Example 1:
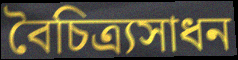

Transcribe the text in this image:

বৈচিত্র্যসাধন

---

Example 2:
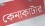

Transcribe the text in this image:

কেনাকাটার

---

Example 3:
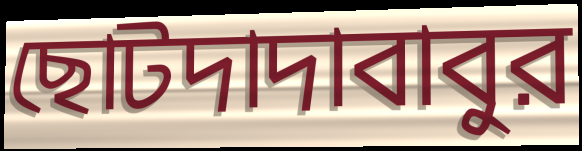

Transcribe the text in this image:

ছোটদাদাবাবুর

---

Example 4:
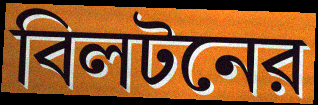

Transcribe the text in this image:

বিলটনের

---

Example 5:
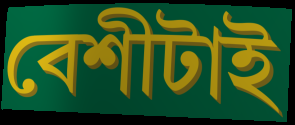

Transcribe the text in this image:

বেশীটাই